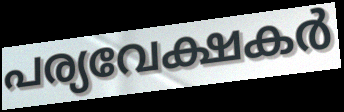
പര്യവേക്ഷകർ